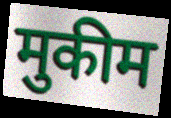
मुकीम